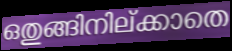
ഒതുങ്ങിനില്ക്കാതെ